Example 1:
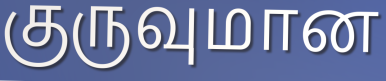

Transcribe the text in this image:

குருவுமான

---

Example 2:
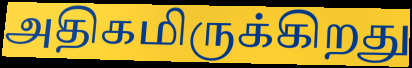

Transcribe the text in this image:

அதிகமிருக்கிறது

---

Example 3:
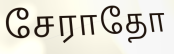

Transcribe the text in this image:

சேராதோ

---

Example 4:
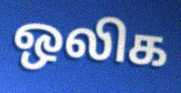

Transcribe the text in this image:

ஒலிக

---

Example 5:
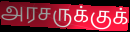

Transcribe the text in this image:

அரசருக்குக்